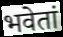
भवेतां